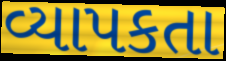
વ્યાપકતા